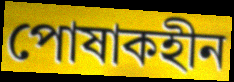
পোষাকহীন